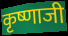
कृष्णाजी